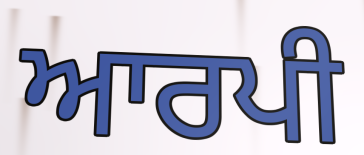
ਆਰਪੀ